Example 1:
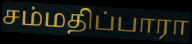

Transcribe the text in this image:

சம்மதிப்பாரா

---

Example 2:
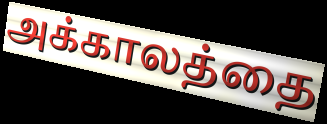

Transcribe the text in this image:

அக்காலத்தை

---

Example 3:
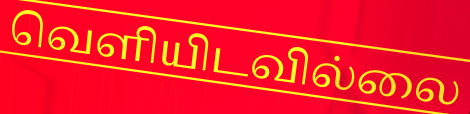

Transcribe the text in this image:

வெளியிடவில்லை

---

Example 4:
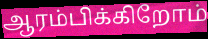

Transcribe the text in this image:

ஆரம்பிக்கிறோம்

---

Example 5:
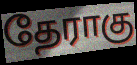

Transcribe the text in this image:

தேராகு